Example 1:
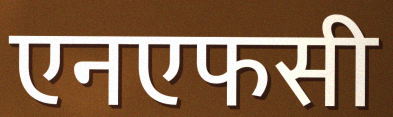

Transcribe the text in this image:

एनएफसी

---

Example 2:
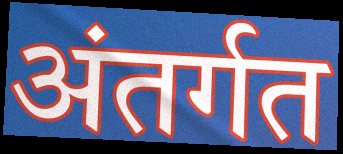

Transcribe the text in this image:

अंतर्गत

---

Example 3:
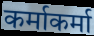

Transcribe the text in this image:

कर्माकर्मा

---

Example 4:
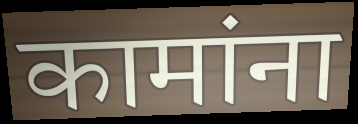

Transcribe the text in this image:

कामांना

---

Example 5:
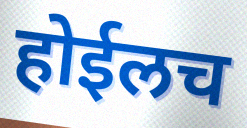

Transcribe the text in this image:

होईलच